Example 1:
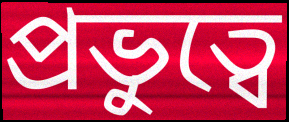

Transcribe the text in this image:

প্রভুত্বে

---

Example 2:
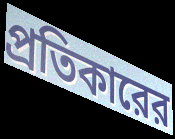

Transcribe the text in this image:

প্রতিকারের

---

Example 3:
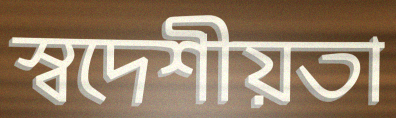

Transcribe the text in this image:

স্বদেশীয়তা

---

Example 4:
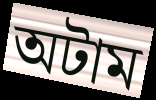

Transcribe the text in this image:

অটাম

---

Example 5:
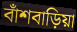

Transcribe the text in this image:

বাঁশবাড়িয়া